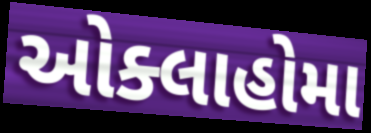
ઓક્લાહોમા